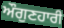
ਔਗੁਣਹਾਰੀ